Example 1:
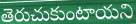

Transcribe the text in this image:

తెరుచుకుంటాయని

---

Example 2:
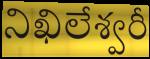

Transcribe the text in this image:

నిఖిలేశ్వరీ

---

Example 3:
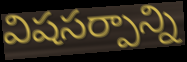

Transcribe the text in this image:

విషసర్పాన్ని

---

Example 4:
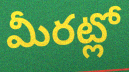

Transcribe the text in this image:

మీరట్లో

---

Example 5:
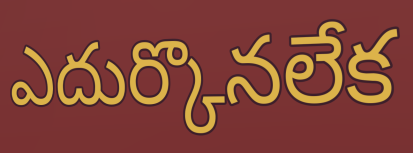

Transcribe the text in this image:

ఎదుర్కొనలేక